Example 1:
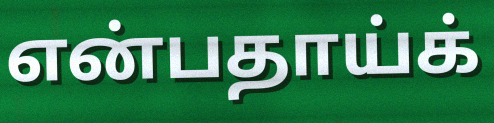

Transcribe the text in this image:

என்பதாய்க்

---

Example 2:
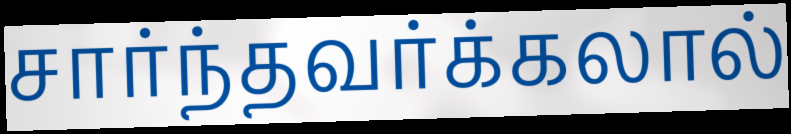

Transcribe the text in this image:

சார்ந்தவர்க்கலால்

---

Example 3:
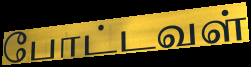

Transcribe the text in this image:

போட்டவள்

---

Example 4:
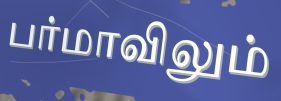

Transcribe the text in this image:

பர்மாவிலும்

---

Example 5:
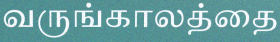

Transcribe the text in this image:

வருங்காலத்தை